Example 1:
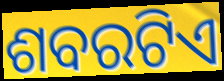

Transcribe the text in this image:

ଶବରଟିଏ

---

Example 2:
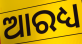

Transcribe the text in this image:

ଆରଧ୍ୟ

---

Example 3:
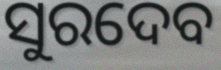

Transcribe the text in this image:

ସୁରଦେବ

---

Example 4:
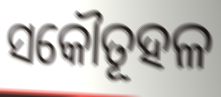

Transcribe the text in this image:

ସକୌତୂହଳ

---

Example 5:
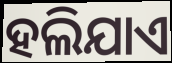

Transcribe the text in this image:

ହଲିଯାଏ